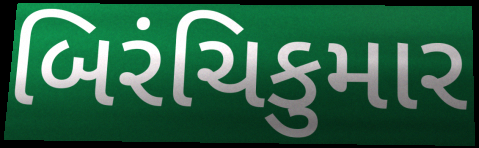
બિરંચિકુમાર